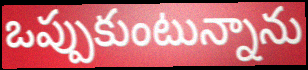
ఒప్పుకుంటున్నాను